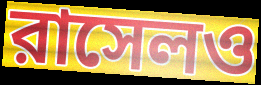
রাসেলও